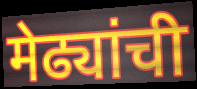
मेढ्यांची